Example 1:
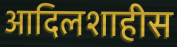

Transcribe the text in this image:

आदिलशाहीस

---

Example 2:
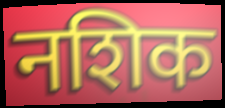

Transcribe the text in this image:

नशिक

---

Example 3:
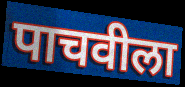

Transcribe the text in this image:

पाचवीला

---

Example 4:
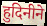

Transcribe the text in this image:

हुदिनीने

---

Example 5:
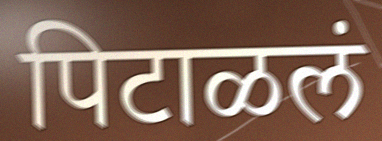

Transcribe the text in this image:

पिटाळलं